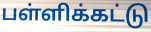
பள்ளிக்கட்டு